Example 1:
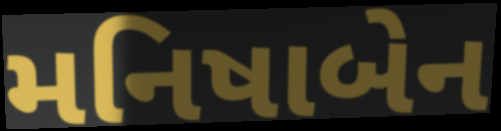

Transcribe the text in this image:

મનિષાબેન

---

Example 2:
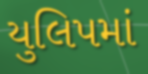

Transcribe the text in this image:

યુલિપમાં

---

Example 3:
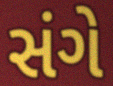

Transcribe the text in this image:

સંગે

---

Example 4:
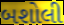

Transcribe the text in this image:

બશોલી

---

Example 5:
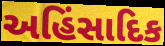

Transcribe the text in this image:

અહિંસાદિક